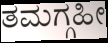
ತಮಗ್ಗಹೀ